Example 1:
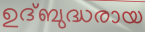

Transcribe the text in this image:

ഉദ്ബുദ്ധരായ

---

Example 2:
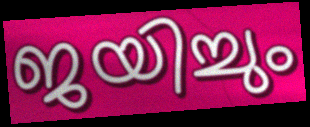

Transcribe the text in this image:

ജയിച്ചും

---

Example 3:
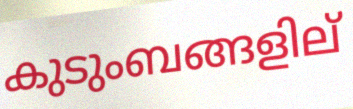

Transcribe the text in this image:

കുടുംബങ്ങളില്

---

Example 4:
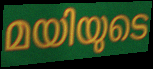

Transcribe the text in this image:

മയിയുടെ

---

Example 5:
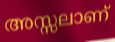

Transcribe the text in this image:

അസ്സലാണ്